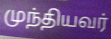
முந்தியவர்